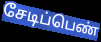
சேடிப்பெண்